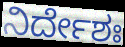
ನಿರ್ದೇಶಃ